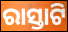
ରାସ୍ତାଟି